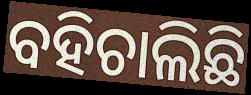
ବହିଚାଲିଛି